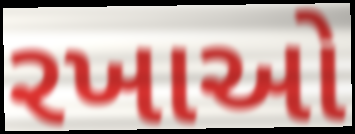
રખાઓ